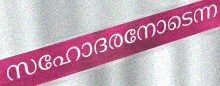
സഹോദരനോടെന്ന